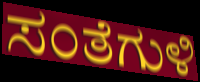
ಸಂತೆಗುಳಿ